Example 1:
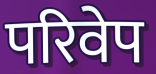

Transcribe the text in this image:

परिवेप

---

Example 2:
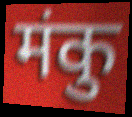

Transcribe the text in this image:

मंकु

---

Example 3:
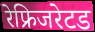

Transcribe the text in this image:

रेफ्रिजरेटड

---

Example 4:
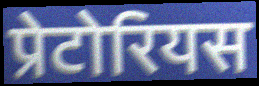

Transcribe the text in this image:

प्रेटोरियस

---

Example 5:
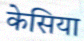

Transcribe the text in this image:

केसिया